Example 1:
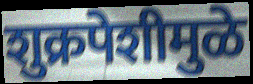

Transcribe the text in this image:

शुक्रपेशीमुळे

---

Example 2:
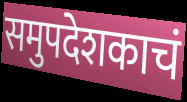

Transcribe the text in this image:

समुपदेशकाचं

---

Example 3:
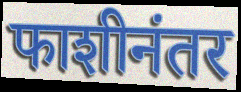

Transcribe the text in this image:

फाशीनंतर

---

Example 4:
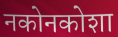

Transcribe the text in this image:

नकोनकोशा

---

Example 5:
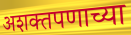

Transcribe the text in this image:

अशक्तपणाच्या